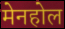
मेनहोल